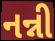
નન્ની